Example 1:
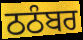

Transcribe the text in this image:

ਠਠੰਬਰ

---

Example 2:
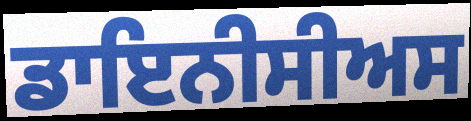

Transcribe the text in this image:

ਡਾਇਨੀਸੀਅਸ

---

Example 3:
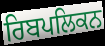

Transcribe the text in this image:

ਰਿਬਪਲਿਕਨ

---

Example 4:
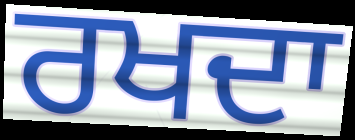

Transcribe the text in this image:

ਰਖਦਾ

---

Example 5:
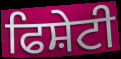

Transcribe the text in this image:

ਫਿਸ਼ੇਟੀ